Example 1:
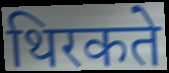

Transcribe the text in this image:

थिरकते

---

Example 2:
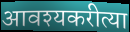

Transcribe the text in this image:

आवश्यकरीत्या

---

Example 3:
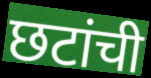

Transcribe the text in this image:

छटांची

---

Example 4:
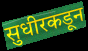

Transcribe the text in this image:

सुधीरकडून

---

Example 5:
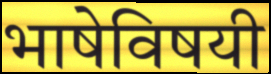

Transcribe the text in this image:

भाषेविषयी